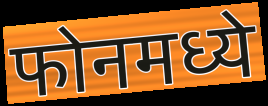
फोनमध्ये